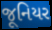
જૂનિયર